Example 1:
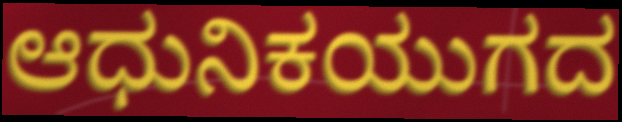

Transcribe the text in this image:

ಆಧುನಿಕಯುಗದ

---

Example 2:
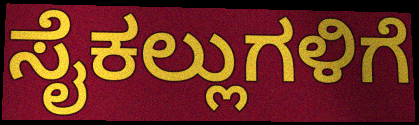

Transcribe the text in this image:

ಸೈಕಲ್ಲುಗಳಿಗೆ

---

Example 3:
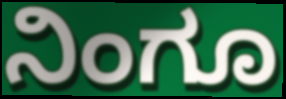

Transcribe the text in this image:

ನಿಂಗೂ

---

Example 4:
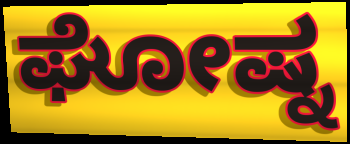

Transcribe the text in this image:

ಘೋಷ್ನ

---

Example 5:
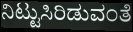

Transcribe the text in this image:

ನಿಟ್ಟುಸಿರಿಡುವಂತೆ